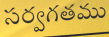
సర్వగతము